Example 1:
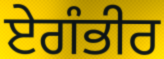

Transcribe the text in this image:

ਏਗੰਭੀਰ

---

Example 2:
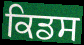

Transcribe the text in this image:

ਕਿਡਸ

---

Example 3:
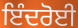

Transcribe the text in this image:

ਇੰਦਰੋਈ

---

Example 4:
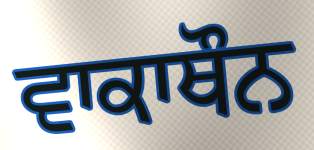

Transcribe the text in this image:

ਵਾਕਾਥੌਨ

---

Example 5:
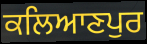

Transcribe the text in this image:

ਕਲਿਆਣਪੁਰ